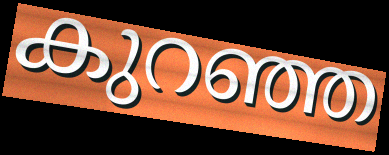
കുറഞ്ഞ